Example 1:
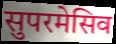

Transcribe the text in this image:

सुपरमेसिव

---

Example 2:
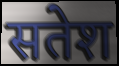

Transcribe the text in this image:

सतेश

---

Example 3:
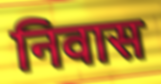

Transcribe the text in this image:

निवास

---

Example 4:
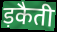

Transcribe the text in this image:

ड़कैती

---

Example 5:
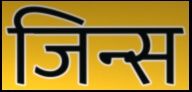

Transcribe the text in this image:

जिन्‍स